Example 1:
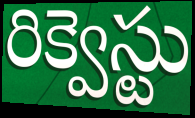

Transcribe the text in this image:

రిక్వెస్టు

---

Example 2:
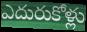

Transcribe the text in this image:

ఎదురుకోళ్లు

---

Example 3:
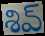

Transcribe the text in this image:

శివ్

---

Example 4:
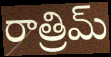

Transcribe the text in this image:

రాత్రిమ్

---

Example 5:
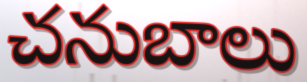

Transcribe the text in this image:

చనుబాలు